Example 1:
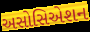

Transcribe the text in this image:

અસોસિએશન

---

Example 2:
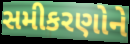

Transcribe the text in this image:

સમીકરણોને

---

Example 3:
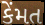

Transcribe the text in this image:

કેંમત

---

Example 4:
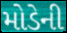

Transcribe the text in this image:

મોડેની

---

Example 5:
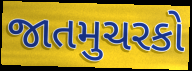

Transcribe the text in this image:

જાતમુચરકો